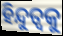
ହିନ୍ଦୁତ୍ୱକୁ